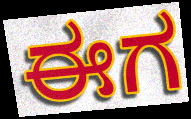
ಈಗ